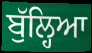
ਬੁੱਲ੍ਹਿਆ